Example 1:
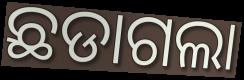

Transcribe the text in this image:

ଛଡାଗଲା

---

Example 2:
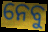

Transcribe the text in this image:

ନେବୁ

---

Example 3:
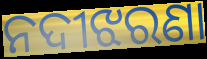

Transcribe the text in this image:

ନଦୀଝରଣା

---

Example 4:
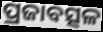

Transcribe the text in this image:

ପ୍ରଜାବତ୍ସଳ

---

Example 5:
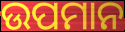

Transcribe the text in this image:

ଉପମାନ